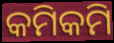
କମିକମି